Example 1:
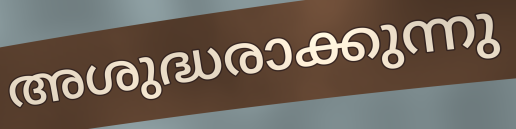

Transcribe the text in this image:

അശുദ്ധരാക്കുന്നു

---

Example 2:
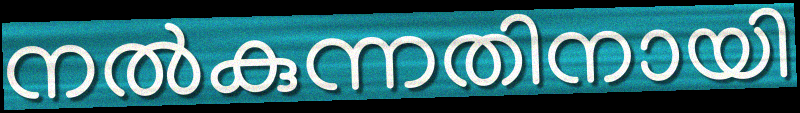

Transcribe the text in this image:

നൽകുന്നതിനായി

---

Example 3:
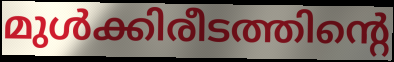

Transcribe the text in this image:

മുൾക്കിരീടത്തിന്റെ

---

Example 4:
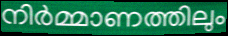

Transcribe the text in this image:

നിർമ്മാണത്തിലും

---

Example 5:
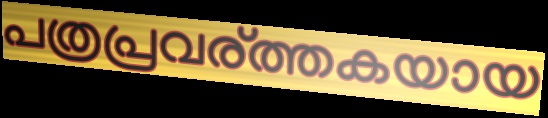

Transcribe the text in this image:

പത്രപ്രവര്ത്തകയായ